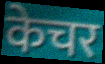
केचर